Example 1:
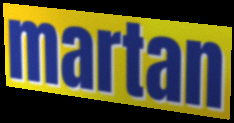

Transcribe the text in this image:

martan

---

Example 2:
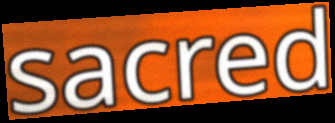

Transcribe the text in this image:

sacred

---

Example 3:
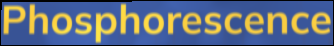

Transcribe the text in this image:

Phosphorescence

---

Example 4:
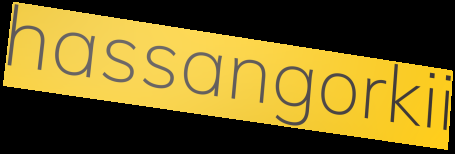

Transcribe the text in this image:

hassangorkii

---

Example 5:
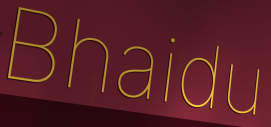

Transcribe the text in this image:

Bhaidu